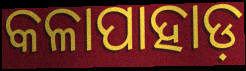
କଳାପାହାଡ଼